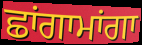
ਛਾਂਗਾਮਾਂਗਾ